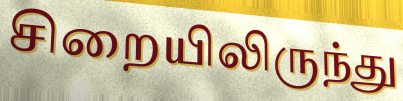
சிறையிலிருந்து